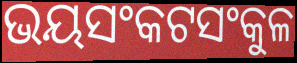
ଭୟସଂକଟସଂକୁଳ